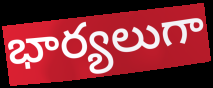
భార్యలుగా